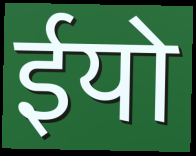
ईयो